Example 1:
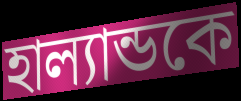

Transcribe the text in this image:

হাল্যান্ডকে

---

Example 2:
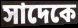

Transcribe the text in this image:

সাদেকে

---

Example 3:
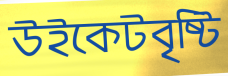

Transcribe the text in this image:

উইকেটবৃষ্টি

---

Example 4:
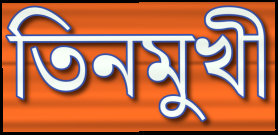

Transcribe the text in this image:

তিনমুখী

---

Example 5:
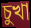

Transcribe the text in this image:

চুখা